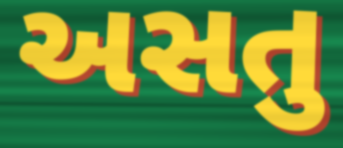
અસતુ